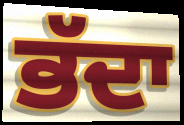
ਭੱਦਾ